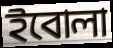
ইবোলা